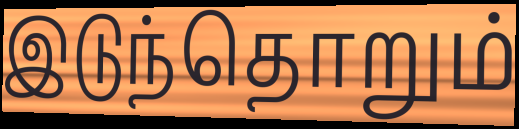
இடுந்தொறும்